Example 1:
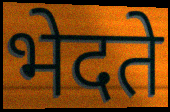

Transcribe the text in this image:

भेदते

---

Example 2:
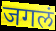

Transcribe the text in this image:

जगलं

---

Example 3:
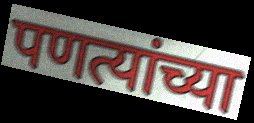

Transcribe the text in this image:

पणत्यांच्या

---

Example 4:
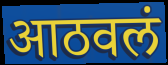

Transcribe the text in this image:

आठवलं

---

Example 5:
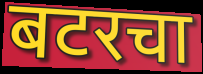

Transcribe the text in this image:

बटरचा